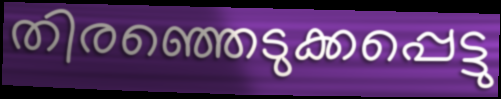
തിരഞ്ഞെടുക്കപ്പെട്ടു